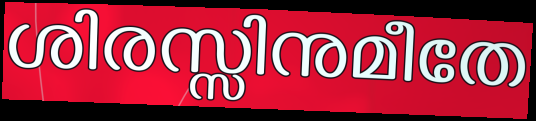
ശിരസ്സിനുമീതേ